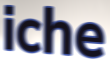
iche